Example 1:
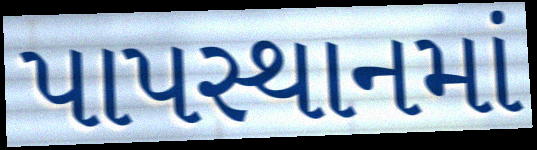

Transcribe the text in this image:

પાપસ્થાનમાં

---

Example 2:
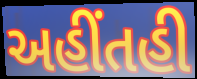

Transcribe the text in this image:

અહીંતહી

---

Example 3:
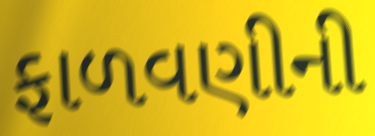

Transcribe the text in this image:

ફાળવણીની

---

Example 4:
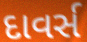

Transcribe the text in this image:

દાવર્સ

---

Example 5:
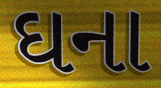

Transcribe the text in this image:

ઘના